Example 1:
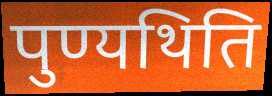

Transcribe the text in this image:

पुण्यथिति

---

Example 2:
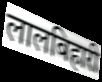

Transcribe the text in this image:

लालबिहारी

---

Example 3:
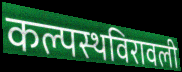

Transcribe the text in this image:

कल्पस्थविरावली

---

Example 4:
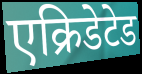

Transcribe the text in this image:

एक्रिडेटेड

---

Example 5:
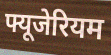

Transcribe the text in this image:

फ्यूजेरियम